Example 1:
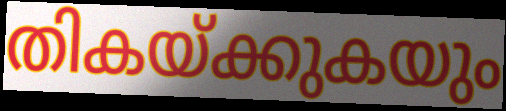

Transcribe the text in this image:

തികയ്ക്കുകയും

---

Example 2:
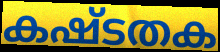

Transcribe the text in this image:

കഷ്ടതക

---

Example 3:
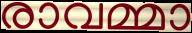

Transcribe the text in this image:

രാവമ്മാ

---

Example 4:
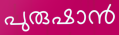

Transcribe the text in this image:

പുരുഷാൻ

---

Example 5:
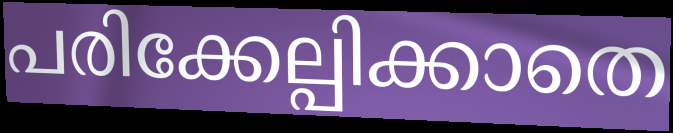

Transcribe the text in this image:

പരിക്കേല്പിക്കാതെ